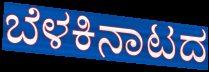
ಬೆಳಕಿನಾಟದ